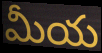
మీయ